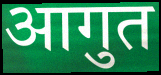
आगुत